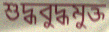
শুদ্ধবুদ্ধমুক্ত